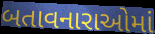
બતાવનારાઓમાં